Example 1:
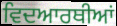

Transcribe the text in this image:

ਵਿਦਆਰਥੀਆਂ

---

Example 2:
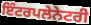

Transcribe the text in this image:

ਇੰਟਰਪਲੇਨੇਟਰੀ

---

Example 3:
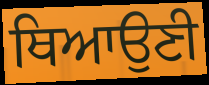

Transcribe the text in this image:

ਥਿਆਉਣੀ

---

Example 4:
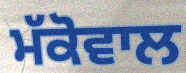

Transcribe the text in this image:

ਮੱਕੋਵਾਲ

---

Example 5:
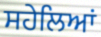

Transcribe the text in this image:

ਸਹੇਲਿਆਂ